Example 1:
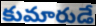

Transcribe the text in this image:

కుమారుడే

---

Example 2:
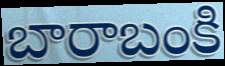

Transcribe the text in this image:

బారాబంకి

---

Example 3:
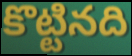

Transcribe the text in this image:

కొట్టినది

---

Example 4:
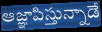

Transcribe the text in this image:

ఆజ్ఞాపిస్తున్నాడే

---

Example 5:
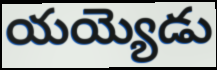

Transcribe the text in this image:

యయ్యెడు